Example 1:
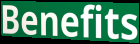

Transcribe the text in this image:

Benefits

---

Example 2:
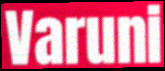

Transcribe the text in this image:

Varuni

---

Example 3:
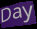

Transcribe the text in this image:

Day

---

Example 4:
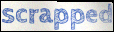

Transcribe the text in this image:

scrapped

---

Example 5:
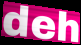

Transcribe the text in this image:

deh